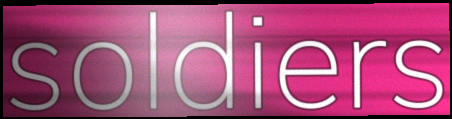
soldiers